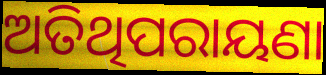
ଅତିଥିପରାୟଣା